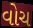
વોચ